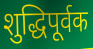
शुद्धिपूर्वक